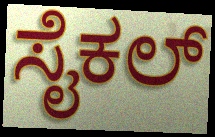
ಸೈಕಲ್